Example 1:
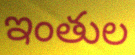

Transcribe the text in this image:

ఇంతుల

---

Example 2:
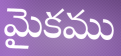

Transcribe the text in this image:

మైకము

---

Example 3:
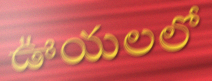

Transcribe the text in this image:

ఊయలలో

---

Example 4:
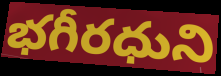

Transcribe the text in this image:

భగీరధుని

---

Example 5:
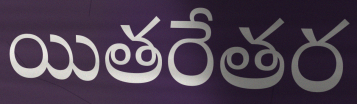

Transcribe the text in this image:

యితరేతర